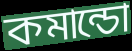
কমান্ডো